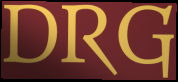
DRG